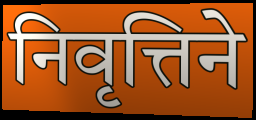
निवृत्तिने